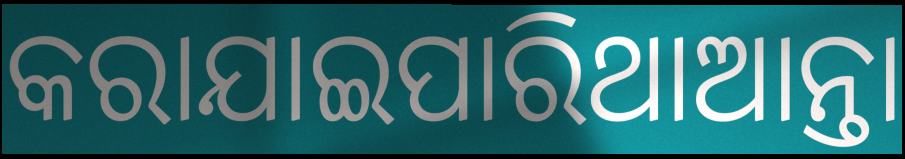
କରାଯାଇପାରିଥାଆନ୍ତା